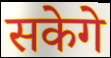
सकेगे